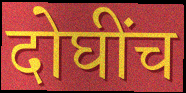
दोघींच